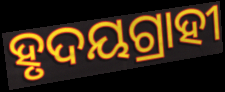
ହୃଦୟଗ୍ରାହୀ